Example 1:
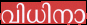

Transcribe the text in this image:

വിധിനാ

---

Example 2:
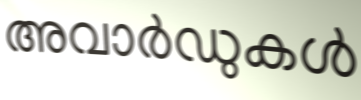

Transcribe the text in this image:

അവാർഡുകൾ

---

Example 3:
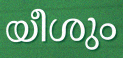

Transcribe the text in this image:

യീശും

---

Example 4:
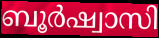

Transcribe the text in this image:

ബൂർഷ്വാസി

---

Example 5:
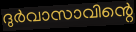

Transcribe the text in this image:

ദുർവാസാവിന്റെ